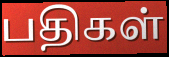
பதிகள்